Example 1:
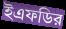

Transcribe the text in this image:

ইএফডির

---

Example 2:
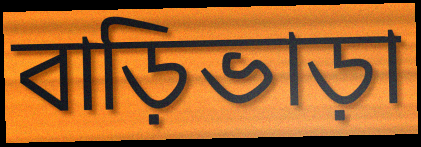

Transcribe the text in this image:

বাড়িভাড়া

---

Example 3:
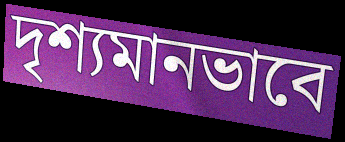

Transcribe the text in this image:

দৃশ্যমানভাবে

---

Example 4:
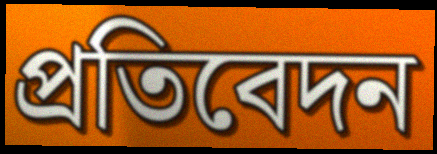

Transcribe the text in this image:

প্রতিবেদন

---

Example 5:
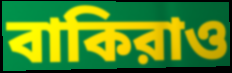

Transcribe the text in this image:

বাকিরাও